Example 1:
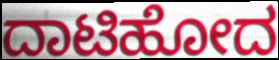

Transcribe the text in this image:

ದಾಟಿಹೋದ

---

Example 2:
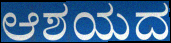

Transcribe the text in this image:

ಆಶಯದ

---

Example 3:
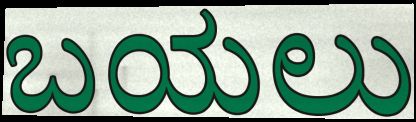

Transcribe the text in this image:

ಬಯಲು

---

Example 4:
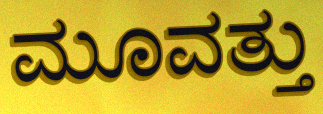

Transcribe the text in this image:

ಮೂವತ್ತು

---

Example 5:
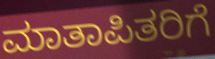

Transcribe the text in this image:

ಮಾತಾಪಿತರಿಗೆ